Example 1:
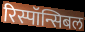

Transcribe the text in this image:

रिस्पॉन्सिबल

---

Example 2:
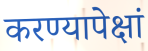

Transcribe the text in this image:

करण्यापेक्षां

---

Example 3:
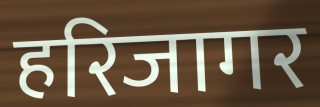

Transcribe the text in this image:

हरिजागर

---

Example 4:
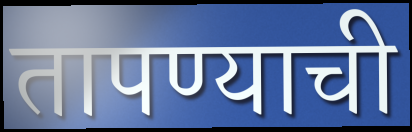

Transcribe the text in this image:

तापण्याची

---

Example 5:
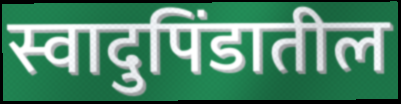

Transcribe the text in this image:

स्वादुपिंडातील